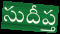
సుదీప్త